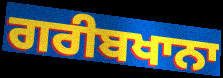
ਗਰੀਬਖਾਨਾ